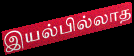
இயல்பில்லாத